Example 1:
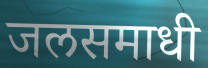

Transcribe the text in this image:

जलसमाधी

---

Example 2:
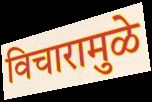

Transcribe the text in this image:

विचारामुळे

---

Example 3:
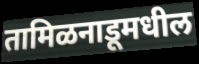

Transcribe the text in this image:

तामिळनाडूमधील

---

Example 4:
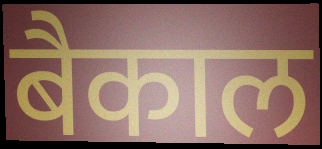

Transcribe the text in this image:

बैकाल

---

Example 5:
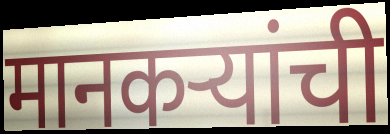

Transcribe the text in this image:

मानकऱ्यांची